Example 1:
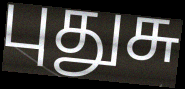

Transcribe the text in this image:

புதுசு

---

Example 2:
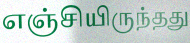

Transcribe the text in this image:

எஞ்சியிருந்தது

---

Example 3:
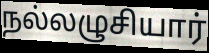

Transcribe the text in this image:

நல்லழுசியார்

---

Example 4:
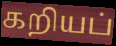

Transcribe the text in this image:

கறியப்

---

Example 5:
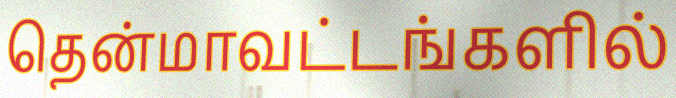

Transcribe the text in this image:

தென்மாவட்டங்களில்